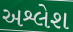
અશ્લેશ